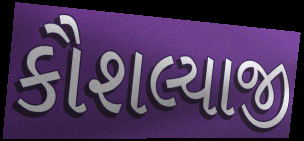
કૌશલ્યાજી